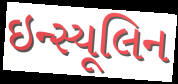
ઇન્સ્યૂલિન